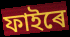
ফাইৰে